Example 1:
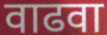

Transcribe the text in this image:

वाढवा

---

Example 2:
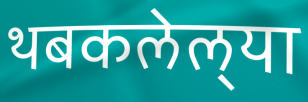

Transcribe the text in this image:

थबकलेल्या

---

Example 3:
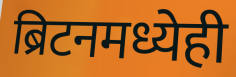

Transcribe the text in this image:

ब्रिटनमध्येही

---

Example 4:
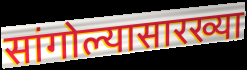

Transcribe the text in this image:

सांगोल्यासारख्या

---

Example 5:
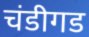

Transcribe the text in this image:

चंडीगड